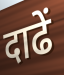
दाढें